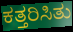
ಕತ್ತರಿಸಿತು